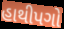
હાથીપગો